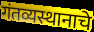
गंतव्यस्थानाचे